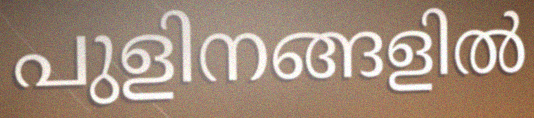
പുളിനങ്ങളിൽ